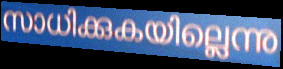
സാധിക്കുകയില്ലെന്നു